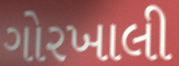
ગોરખાલી